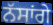
ਨੱਸਾਂਗੇ